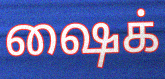
ஷைக்